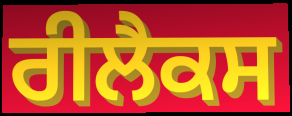
ਰੀਲੈਕਸ